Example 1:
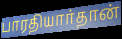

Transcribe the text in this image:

பாரதியார்தான்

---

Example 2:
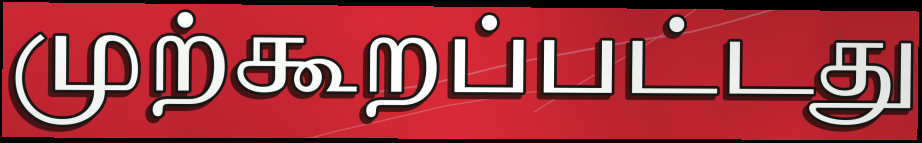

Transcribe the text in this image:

முற்கூறப்பட்டது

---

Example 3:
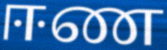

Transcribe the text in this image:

ஈண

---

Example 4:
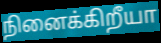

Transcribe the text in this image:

நினைக்கிறீயா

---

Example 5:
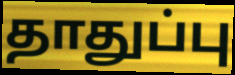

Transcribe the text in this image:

தாதுப்பு